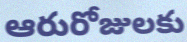
ఆరురోజులకు